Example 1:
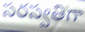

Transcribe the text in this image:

సరస్వతిగా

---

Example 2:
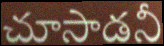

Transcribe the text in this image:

చూసాడనీ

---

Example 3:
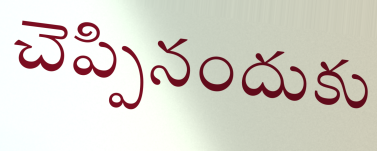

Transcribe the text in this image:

చెప్పినందుకు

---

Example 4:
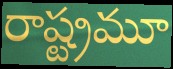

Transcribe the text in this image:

రాష్ట్రమూ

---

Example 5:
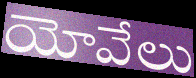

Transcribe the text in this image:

యోవేలు